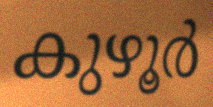
കുഴൂർ